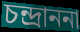
চন্দ্রাননা